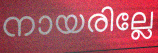
നായരില്ലേ